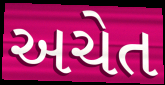
અચેત